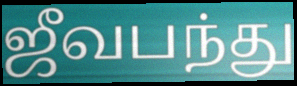
ஜீவபந்து